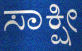
ಸಾಕ್ಷೀ